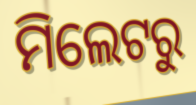
ମିଲେଟରୁ